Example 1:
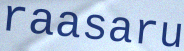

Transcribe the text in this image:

raasaru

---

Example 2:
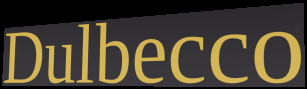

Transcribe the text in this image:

Dulbecco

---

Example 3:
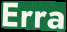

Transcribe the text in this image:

Erra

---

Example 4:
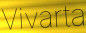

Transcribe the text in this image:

Vivarta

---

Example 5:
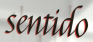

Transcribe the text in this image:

sentido